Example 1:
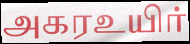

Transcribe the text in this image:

அகரஉயிர்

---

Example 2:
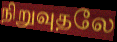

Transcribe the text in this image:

நிறுவுதலே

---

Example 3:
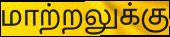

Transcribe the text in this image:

மாற்றலுக்கு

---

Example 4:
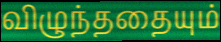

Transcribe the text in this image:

விழுந்ததையும்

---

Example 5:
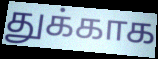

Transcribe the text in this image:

துக்காக